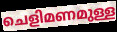
ചെളിമണമുള്ള